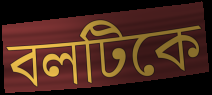
বলটিকে